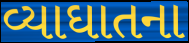
વ્યાઘાતના